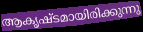
ആകൃഷ്ടമായിരിക്കുന്നു